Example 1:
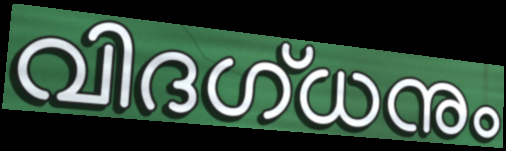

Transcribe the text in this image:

വിദഗ്ധനും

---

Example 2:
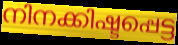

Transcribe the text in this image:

നിനക്കിഷ്ടപ്പെട്ട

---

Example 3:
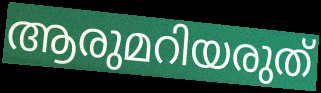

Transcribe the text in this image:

ആരുമറിയരുത്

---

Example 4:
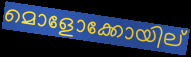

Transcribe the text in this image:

മൊളോക്കോയില്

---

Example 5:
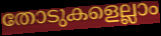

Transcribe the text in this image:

തോടുകളെല്ലാം